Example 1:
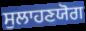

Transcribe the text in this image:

ਸੁਲਾਹਣਯੋਗ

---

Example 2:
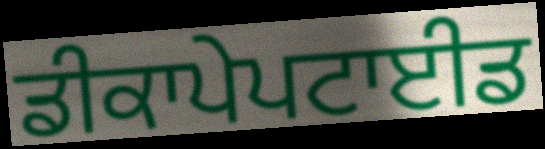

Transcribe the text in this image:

ਡੀਕਾਪੇਪਟਾਈਡ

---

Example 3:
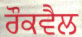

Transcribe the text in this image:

ਰੌਕਵੈਲ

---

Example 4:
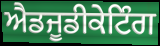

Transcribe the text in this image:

ਐਡਜੂਡੀਕੇਟਿੰਗ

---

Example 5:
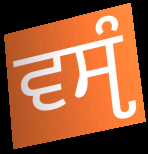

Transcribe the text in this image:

ਵਸੵੰ